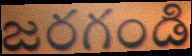
జరగండి